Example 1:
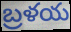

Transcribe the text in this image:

బ్రళయ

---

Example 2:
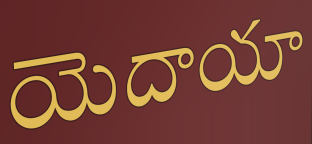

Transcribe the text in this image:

యెదాయా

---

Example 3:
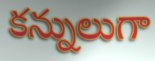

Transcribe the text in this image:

కన్నులుగా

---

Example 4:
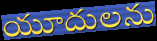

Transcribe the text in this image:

యూదులను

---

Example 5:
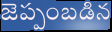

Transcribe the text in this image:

జెప్పంబడిన